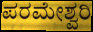
ಪರಮೇಶ್ವರಿ